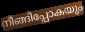
നീങ്ങിപ്പോകയും